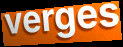
verges